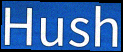
Hush